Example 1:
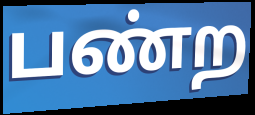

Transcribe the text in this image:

பண்ற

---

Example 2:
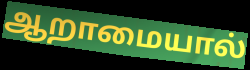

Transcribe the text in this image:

ஆறாமையால்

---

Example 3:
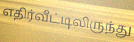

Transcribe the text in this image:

எதிர்வீட்டிலிருந்து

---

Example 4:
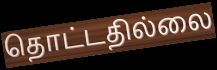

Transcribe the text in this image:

தொட்டதில்லை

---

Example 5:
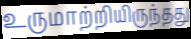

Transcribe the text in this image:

உருமாற்றியிருந்தது